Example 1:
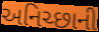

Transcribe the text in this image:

અનિચ્છાની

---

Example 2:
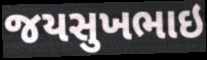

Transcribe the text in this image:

જયસુખભાઇ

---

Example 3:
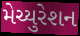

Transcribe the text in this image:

મેચ્યુરેશન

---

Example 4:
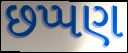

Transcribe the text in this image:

છપ્પણ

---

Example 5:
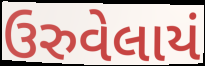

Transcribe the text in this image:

ઉરુવેલાયં